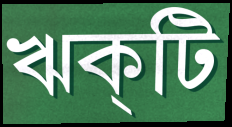
ঋক্‌টি